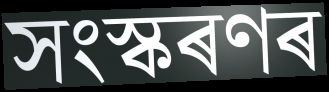
সংস্কৰণৰ